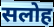
सलोह